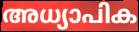
അധ്യാപിക